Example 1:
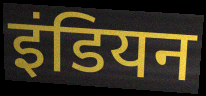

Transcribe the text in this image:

इंडियन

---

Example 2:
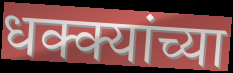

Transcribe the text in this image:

धक्क्यांच्या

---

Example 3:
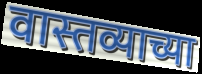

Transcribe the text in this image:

वास्तव्याच्या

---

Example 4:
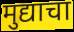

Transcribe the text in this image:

मुद्याचा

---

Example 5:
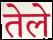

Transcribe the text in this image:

तेले